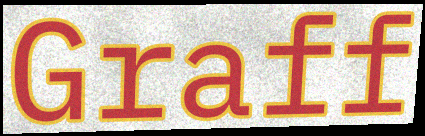
Graff